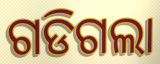
ଗଡିଗଲା